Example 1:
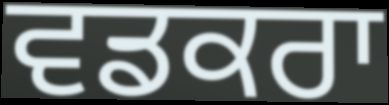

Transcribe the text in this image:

ਵਡਕਰਾ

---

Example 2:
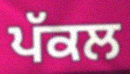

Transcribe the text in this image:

ਪੱਕਲ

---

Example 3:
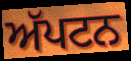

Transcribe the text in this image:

ਅੱਪਟਨ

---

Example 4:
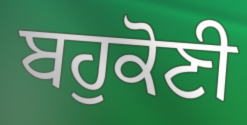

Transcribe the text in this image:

ਬਹੁਕੋਣੀ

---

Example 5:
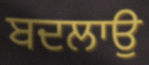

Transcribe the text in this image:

ਬਦਲਾਉ